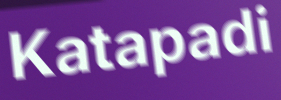
Katapadi